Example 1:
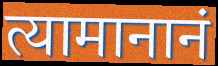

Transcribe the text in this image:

त्यामानानं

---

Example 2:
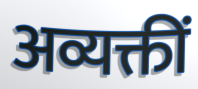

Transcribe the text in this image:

अव्यक्तीं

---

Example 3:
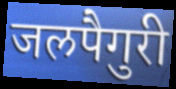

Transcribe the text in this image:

जलपैगुरी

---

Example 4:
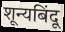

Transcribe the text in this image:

शून्यबिंदू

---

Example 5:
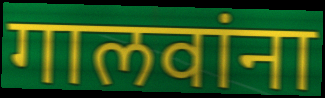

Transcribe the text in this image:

गालवांना